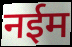
नईम